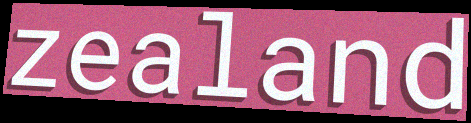
zealand